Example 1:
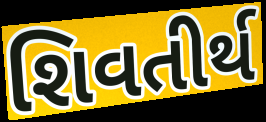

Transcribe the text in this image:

શિવતીર્થ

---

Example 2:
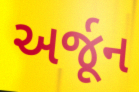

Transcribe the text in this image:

અર્જૂન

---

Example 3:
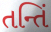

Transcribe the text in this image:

તન્તિં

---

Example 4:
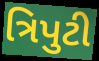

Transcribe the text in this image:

ત્રિપુટી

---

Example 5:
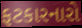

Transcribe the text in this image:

ફટકારનારો